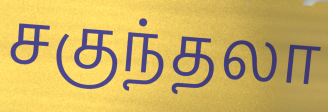
சகுந்தலா